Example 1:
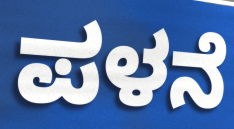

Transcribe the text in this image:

ಪಳನೆ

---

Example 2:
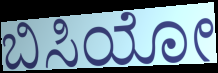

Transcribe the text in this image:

ಬಿಸಿಯೋ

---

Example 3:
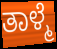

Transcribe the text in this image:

ತಾಳ್ಮೆ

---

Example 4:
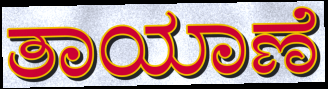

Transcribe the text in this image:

ತಾಯಾಣೆ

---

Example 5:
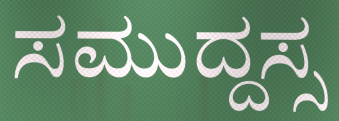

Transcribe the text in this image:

ಸಮುದ್ದಸ್ಸ